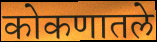
कोकणातले